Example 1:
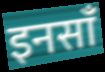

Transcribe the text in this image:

इनसाँ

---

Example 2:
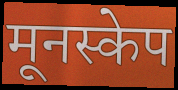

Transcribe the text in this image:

मूनस्केप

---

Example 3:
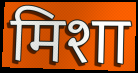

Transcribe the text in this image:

मिशा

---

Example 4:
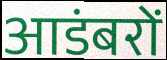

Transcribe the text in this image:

आडंबरों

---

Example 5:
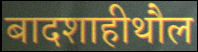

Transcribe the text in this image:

बादशाहीथौल